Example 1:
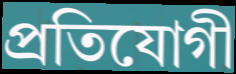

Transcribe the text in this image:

প্ৰতিযোগী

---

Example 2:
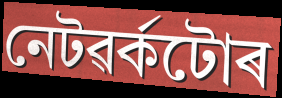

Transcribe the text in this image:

নেটৱৰ্কটোৰ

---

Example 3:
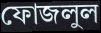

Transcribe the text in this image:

ফোজলুল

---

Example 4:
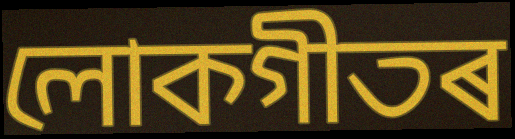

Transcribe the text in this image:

লোকগীতৰ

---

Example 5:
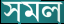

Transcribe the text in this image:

সমল